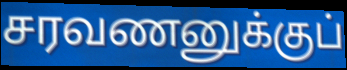
சரவணனுக்குப்